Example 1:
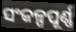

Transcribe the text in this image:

ସଂକଳ୍ପପୂର୍ଣ୍ଣ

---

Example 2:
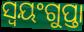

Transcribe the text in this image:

ସ୍ୱୟଂଗୁପ୍ତା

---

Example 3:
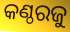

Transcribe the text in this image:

କଣ୍ଠରଜୁ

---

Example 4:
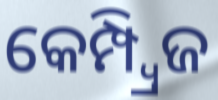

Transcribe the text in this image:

କେମ୍ପ୍ୱ୍ରିଜ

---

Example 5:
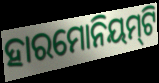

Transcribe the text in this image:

ହାରମୋନିୟମ୍‍ଟି